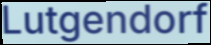
Lutgendorf